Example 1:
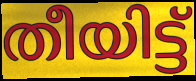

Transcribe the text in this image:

തീയിട്ട്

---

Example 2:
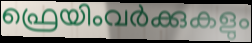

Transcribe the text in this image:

ഫ്രെയിംവർക്കുകളും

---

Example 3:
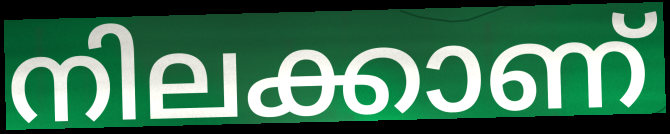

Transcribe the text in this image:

നിലക്കാണ്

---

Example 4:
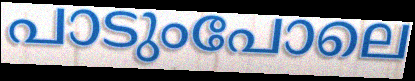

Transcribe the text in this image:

പാടുംപോലെ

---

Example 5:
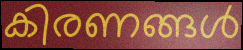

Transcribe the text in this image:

കിരണങ്ങൾ